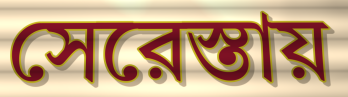
সেরেস্তায়